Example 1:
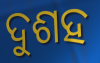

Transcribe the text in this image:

ଦୁଶହ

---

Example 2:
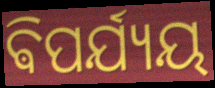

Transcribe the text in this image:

ଵିପର୍ଯ୍ୟୟ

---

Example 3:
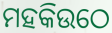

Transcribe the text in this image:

ମହକିଉଠେ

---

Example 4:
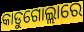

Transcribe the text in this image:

କାଡୁଗୋଲ୍ଲାରେ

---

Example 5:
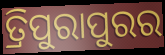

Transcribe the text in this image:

ତ୍ରିପୁରାପୁରର